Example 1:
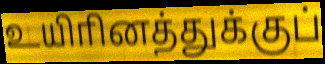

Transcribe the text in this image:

உயிரினத்துக்குப்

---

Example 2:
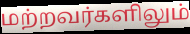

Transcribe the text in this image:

மற்றவர்களிலும்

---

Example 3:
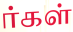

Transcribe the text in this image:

ர்கள்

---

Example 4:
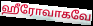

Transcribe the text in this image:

ஹீரோவாகவே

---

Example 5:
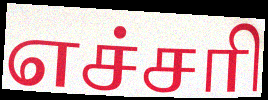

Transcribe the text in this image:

எச்சரி